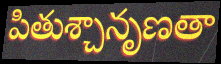
పితుశ్చానృణతా